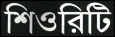
শিওরিটি